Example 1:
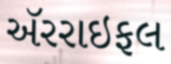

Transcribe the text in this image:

ઍરરાઇફલ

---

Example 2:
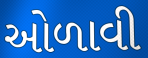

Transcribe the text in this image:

ઓળાવી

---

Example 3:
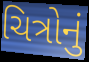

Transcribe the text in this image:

ચિત્રોનું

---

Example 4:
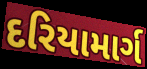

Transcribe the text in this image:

દરિયામાર્ગ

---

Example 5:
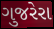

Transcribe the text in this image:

ગુજરેરા